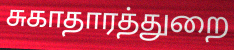
சுகாதாரத்துறை